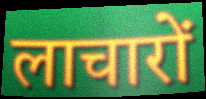
लाचारों